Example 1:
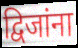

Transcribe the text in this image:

द्विजांना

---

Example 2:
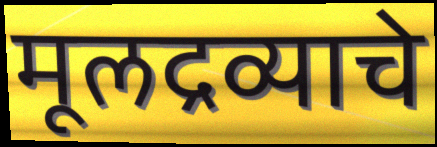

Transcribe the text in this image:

मूलद्रव्याचे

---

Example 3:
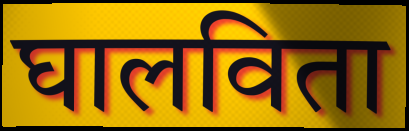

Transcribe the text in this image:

घालविता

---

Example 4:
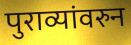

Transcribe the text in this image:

पुराव्यांवरुन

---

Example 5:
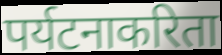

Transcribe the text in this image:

पर्यटनाकरिता